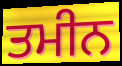
ਤਮੀਨ